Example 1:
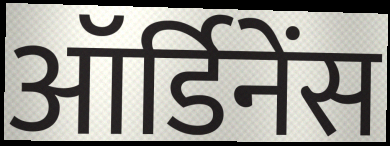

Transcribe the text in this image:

ऑर्डिनेंस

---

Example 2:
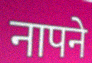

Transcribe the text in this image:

नापने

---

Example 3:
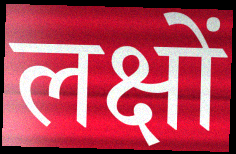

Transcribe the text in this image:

लक्षों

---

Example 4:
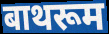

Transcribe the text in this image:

बाथरूम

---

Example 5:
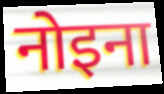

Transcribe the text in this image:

नोइना